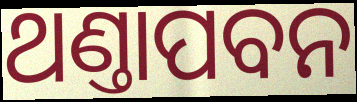
ଥଣ୍ତାପବନ